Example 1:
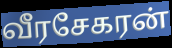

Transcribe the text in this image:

வீரசேகரன்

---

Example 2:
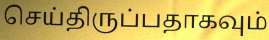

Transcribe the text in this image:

செய்திருப்பதாகவும்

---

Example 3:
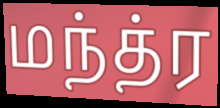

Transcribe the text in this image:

மந்த்ர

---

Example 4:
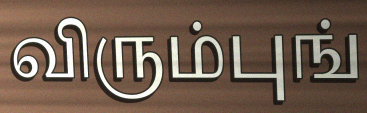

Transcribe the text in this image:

விரும்புங்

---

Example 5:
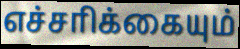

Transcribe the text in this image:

எச்சரிக்கையும்